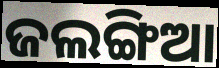
ଜଲଙ୍ଗିଆ